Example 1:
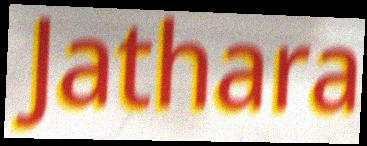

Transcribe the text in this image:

Jathara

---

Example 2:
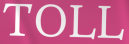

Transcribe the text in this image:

TOLL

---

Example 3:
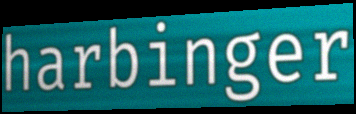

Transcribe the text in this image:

harbinger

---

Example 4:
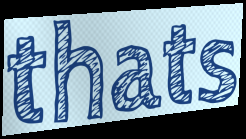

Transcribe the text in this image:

thats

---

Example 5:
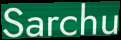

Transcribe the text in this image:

Sarchu